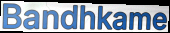
Bandhkame